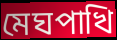
মেঘপাখি